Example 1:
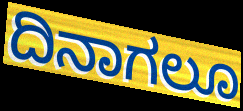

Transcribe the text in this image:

ದಿನಾಗಲೂ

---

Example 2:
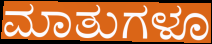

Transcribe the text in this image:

ಮಾತುಗಳೂ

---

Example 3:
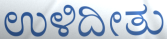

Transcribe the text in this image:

ಉಳಿದೀತು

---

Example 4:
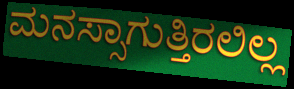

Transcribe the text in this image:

ಮನಸ್ಸಾಗುತ್ತಿರಲಿಲ್ಲ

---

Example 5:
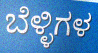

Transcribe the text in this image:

ಬೆಳ್ಳಿಗಳ